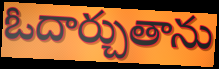
ఓదార్చుతాను